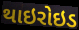
થાઇરોઇડ